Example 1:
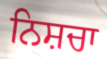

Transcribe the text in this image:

ਨਿਸ਼ਚਾ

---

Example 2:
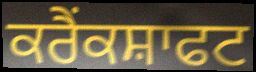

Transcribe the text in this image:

ਕਰੈਂਕਸ਼ਾਫਟ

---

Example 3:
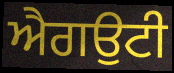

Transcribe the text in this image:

ਐਗਉਟੀ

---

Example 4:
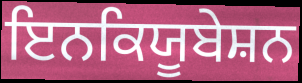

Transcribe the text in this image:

ਇਨਕਿਯੂਬੇਸ਼ਨ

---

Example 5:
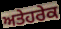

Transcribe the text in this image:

ਅਤੇਹਰੇਕ